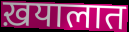
ख़यालात